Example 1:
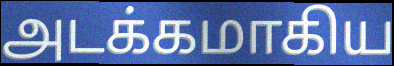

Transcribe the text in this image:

அடக்கமாகிய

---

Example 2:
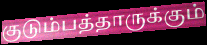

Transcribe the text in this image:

குடும்பத்தாருக்கும்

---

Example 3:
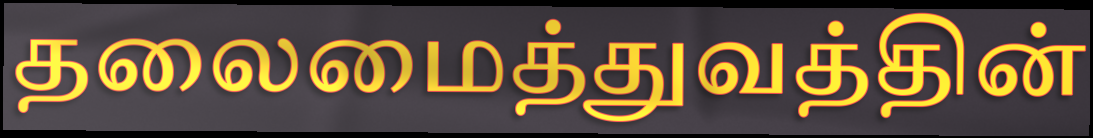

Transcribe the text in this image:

தலைமைத்துவத்தின்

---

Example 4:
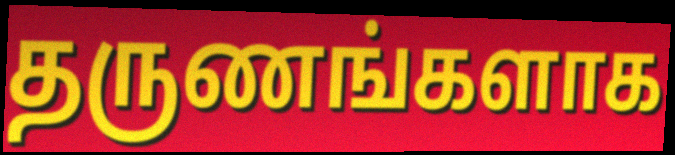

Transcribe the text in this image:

தருணங்களாக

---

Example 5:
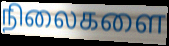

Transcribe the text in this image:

நிலைகளை